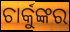
ଚାର୍କୁଙ୍କର